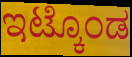
ಇಟ್ಕೊಂಡ